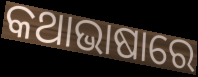
କଥାଭାଷାରେ